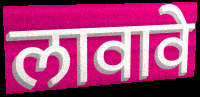
लावावे